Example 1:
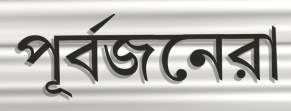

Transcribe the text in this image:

পূর্বজনেরা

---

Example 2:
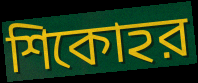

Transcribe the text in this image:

শিকোহর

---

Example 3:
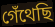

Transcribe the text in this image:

গেঁথেছি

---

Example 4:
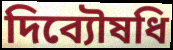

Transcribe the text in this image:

দিব্যৌষধি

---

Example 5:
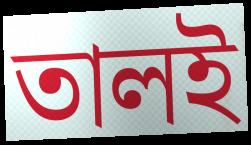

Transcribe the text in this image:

তালই